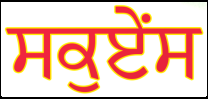
ਸਕੁਏਂਸ